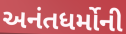
અનંતધર્મોની